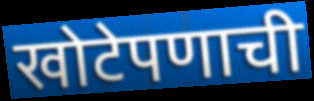
खोटेपणाची